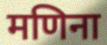
मणिना